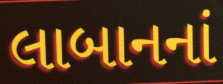
લાબાનનાં